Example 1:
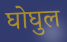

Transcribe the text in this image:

घोघुल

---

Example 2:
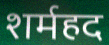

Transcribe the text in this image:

शर्महद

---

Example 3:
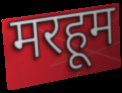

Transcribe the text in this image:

मरहूम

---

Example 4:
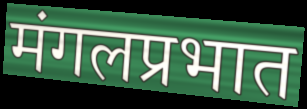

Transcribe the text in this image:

मंगलप्रभात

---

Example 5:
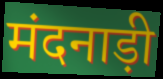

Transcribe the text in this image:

मंदनाड़ी